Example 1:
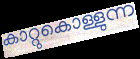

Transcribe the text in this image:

കാറ്റുകൊള്ളുന്ന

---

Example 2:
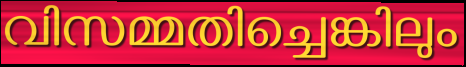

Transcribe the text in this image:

വിസമ്മതിച്ചെങ്കിലും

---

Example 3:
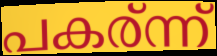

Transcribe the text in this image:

പകര്ന്ന്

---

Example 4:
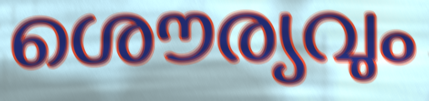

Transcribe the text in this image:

ശൌര്യവും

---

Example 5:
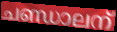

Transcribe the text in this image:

ചണ്ഡാലന്